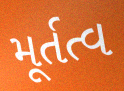
મૂર્તત્વ